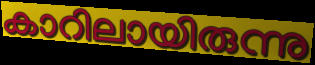
കാറിലായിരുന്നു